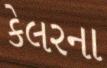
કેલરના